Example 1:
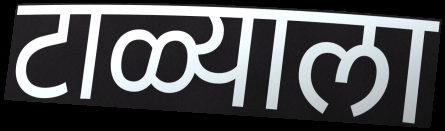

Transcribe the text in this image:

टाळ्याला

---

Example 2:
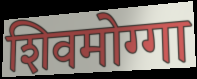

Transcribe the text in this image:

शिवमोग्गा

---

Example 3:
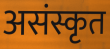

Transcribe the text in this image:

असंस्कृत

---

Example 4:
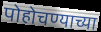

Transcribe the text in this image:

पोहोचण्याच्या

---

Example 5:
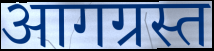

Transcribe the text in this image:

आगग्रस्त